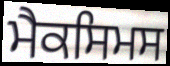
ਮੈਕਸਿਮਸ